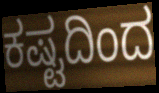
ಕಷ್ಟದಿಂದ